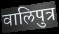
वालिपुत्र